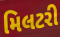
મિલટરી